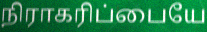
நிராகரிப்பையே